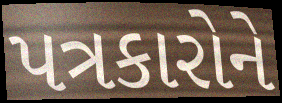
પત્રકારોને